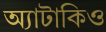
অ্যাটাকিও